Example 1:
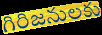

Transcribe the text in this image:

గిరిజనులకు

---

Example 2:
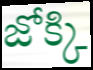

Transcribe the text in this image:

జోక్కి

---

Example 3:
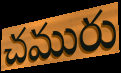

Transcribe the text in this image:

చమురు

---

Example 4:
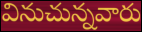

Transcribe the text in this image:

వినుచున్నవారు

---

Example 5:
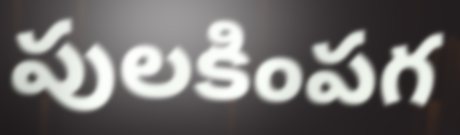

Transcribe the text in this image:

పులకింపగ